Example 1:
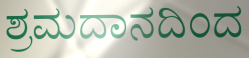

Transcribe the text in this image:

ಶ್ರಮದಾನದಿಂದ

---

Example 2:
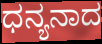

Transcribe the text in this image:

ಧನ್ಯನಾದ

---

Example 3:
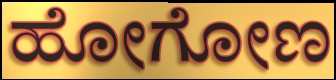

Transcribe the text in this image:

ಹೋಗೋಣ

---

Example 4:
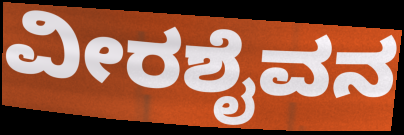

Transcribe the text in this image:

ವೀರಶೈವನ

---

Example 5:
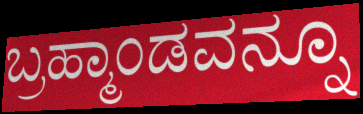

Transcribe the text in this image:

ಬ್ರಹ್ಮಾಂಡವನ್ನೂ